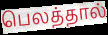
பெலத்தால்